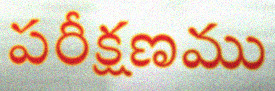
పరీక్షణము